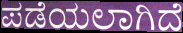
ಪಡೆಯಲಾಗಿದೆ